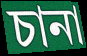
চানা